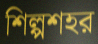
শিল্পশহর